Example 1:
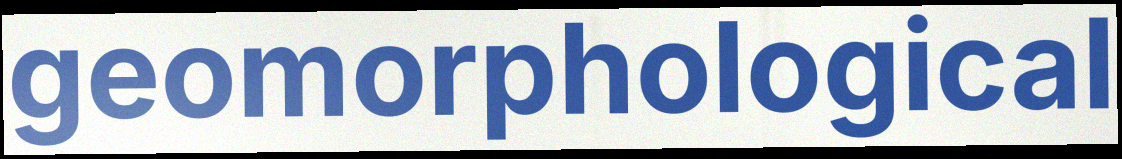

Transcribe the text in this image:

geomorphological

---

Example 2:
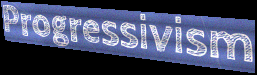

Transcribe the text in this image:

Progressivism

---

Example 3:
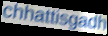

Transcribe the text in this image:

chhattisgadh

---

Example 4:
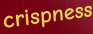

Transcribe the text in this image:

crispness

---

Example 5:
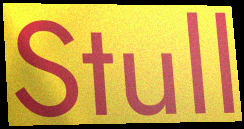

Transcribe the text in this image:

Stull